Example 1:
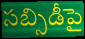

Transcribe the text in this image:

సబ్సిడీపై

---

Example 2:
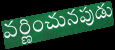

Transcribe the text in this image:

వర్ణించునపుడు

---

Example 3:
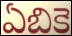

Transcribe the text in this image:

ఏబికె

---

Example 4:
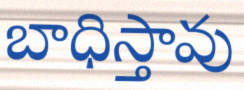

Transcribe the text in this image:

బాధిస్తావు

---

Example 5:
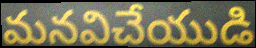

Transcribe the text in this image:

మనవిచేయుడి